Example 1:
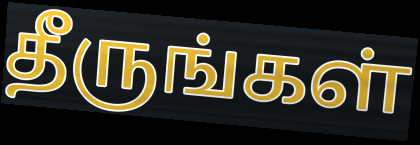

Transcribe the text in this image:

தீருங்கள்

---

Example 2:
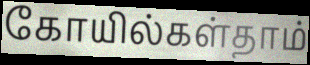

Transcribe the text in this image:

கோயில்கள்தாம்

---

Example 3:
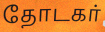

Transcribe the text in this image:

தோடகர்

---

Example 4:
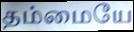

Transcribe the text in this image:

தம்மையே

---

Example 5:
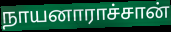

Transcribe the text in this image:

நாயனாராச்சான்